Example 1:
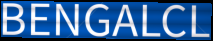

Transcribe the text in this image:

BENGALCL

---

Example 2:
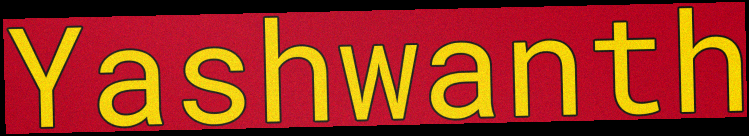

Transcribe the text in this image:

Yashwanth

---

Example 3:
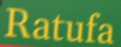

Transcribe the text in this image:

Ratufa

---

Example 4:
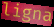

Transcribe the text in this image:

ligna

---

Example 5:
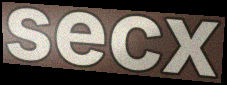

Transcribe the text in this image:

secx